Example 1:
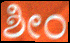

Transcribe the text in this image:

ಶೀಂ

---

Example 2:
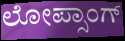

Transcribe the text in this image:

ಲೋಪ್ಸಾಂಗ್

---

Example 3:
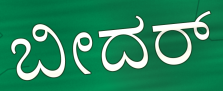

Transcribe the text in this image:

ಬೀದರ್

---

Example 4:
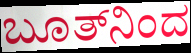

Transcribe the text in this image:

ಬೂತ್‌ನಿಂದ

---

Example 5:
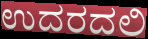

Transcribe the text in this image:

ಉದರದಲಿ